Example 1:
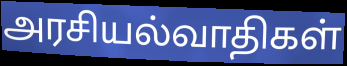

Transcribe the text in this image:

அரசியல்வாதிகள்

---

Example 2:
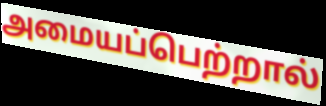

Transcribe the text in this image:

அமையப்பெற்றால்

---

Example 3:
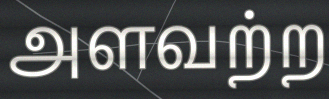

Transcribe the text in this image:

அளவற்ற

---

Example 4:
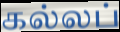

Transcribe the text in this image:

கல்லப்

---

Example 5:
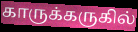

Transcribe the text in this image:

காருக்கருகில்